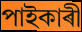
পাইকাৰী